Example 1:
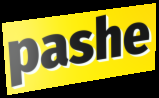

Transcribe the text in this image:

pashe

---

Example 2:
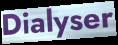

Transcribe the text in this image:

Dialyser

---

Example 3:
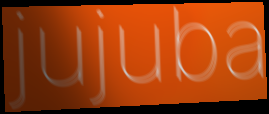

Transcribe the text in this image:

jujuba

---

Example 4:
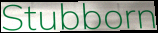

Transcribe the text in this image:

Stubborn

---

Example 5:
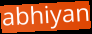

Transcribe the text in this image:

abhiyan